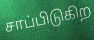
சாப்பிடுகிற